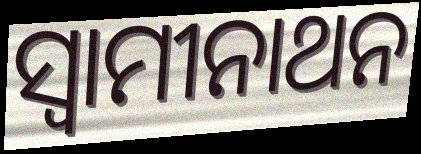
ସ୍ବାମୀନାଥନ